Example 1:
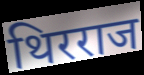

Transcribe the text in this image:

थिरराज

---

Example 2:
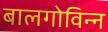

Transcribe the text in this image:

बालगोविन्न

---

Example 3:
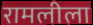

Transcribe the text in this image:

रामलीला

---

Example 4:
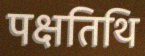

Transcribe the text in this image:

पक्षतिथि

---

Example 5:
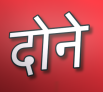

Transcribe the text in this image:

दोने